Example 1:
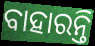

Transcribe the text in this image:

ବାହାରନ୍ତି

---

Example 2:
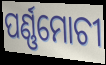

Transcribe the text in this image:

ପର୍ଣ୍ଣମୋଚୀ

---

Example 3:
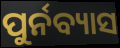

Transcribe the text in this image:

ପୁର୍ନବ୍ୟାସ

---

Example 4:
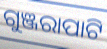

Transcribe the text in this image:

ଗୁଞ୍ଜରାପାଟି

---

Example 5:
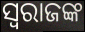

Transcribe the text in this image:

ସ୍ୱରାଜଙ୍କ